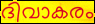
ദിവാകരം